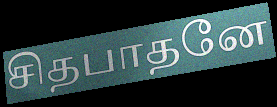
சிதபாதனே